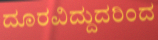
ದೂರವಿದ್ದುದರಿಂದ